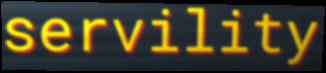
servility